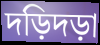
দড়িদড়া